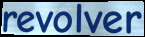
revolver